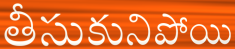
తీసుకునిపోయి